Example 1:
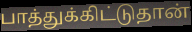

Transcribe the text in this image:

பாத்துக்கிட்டுதான்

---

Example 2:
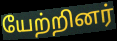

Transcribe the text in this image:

யேற்றினர்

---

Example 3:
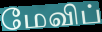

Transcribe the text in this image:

மேவிப்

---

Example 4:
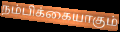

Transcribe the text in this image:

நம்பிக்கையாகும்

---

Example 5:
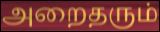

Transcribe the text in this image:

அறைதரும்